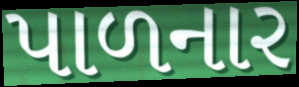
પાળનાર